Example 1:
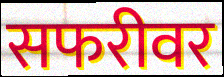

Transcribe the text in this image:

सफरीवर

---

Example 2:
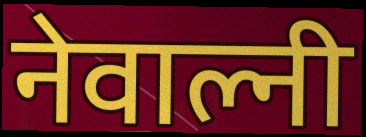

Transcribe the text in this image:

नेवाल्नी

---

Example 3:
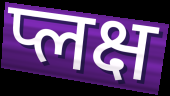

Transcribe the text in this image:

प्लक्ष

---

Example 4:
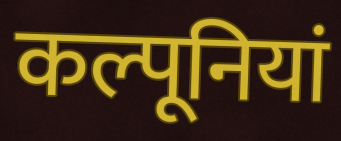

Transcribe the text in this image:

कल्पूनियां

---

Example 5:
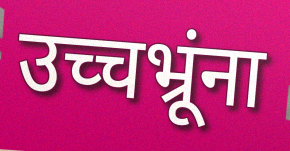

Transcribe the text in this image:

उच्चभ्रूंना